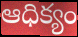
ఆధిక్యం